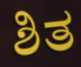
ಶಿತ